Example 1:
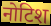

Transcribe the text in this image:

नोटिश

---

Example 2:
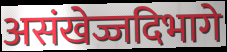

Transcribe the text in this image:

असंखेज्जदिभागे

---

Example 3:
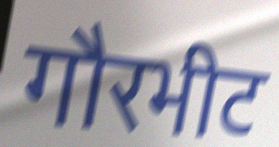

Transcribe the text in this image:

गौरभीट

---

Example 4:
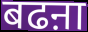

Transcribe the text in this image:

बढऩा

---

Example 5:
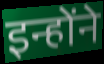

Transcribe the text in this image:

इन्‍होंने